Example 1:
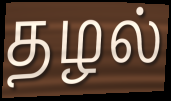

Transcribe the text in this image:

தழல்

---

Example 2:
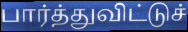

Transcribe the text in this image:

பார்த்துவிட்டுச்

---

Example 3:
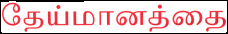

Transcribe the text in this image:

தேய்மானத்தை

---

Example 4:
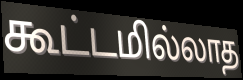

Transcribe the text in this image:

கூட்டமில்லாத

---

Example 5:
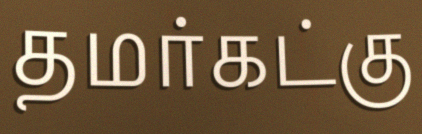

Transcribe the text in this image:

தமர்கட்கு